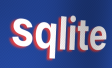
sqlite